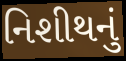
નિશીથનું